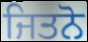
ਜਿਤਨੋ